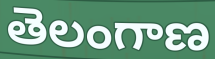
తెలంగాణ